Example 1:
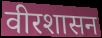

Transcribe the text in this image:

वीरशासन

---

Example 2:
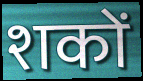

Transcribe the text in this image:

शकों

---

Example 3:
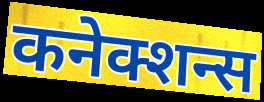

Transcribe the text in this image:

कनेक्शन्स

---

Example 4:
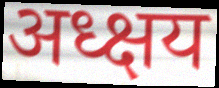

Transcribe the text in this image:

अध्क्षय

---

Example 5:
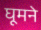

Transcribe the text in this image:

घूमने